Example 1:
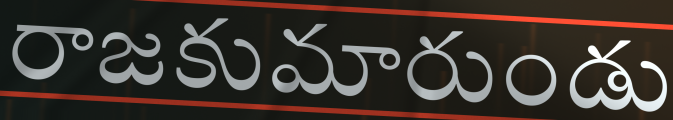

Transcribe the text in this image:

రాజకుమారుండు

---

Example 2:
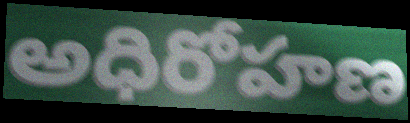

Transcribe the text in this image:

అధిరోహణ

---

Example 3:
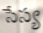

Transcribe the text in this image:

సేస్య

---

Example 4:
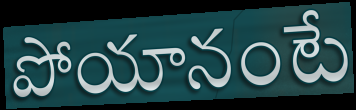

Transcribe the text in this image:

పోయానంటే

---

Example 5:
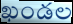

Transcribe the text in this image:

ఖండల